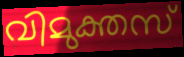
വിമുക്തസ്